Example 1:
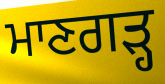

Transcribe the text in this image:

ਮਾਣਗੜ੍ਹ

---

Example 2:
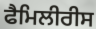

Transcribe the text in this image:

ਫੈਮਿਲੀਰੀਸ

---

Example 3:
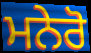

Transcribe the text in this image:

ਮਨੇਰੋ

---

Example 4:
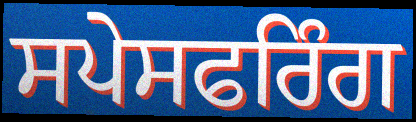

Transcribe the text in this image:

ਸਪੇਸਫਰਿੰਗ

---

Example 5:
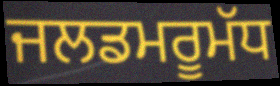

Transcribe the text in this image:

ਜਲਡਮਰੂਮੱਧ